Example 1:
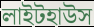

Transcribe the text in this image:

লাইটহাউস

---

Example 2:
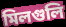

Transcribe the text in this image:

মিলগুলি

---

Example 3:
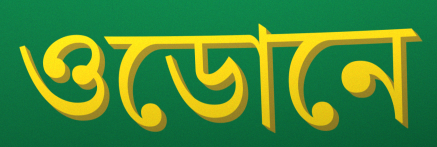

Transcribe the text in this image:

ওডোনে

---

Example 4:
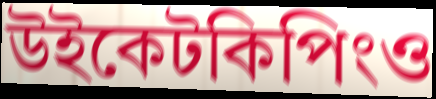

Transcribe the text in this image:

উইকেটকিপিংও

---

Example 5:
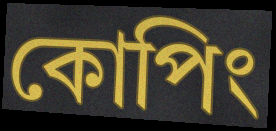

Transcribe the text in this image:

কোপিং